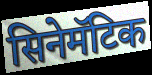
सिनेमॅटिक